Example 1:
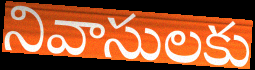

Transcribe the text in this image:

నివాసులకు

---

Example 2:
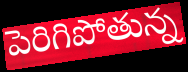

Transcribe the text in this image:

పెరిగిపోతున్న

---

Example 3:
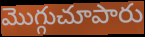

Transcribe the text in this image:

మొగ్గుచూపారు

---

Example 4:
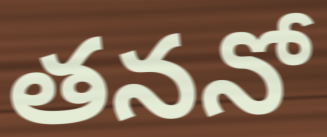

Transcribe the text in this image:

తననో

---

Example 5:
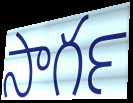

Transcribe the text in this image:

సాగర్‍